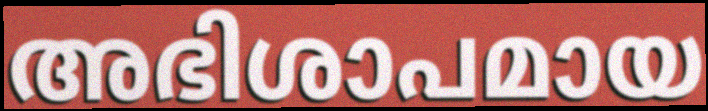
അഭിശാപമായ